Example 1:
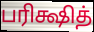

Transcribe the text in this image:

பரிக்ஷித்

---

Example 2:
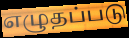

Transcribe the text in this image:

எழுதப்படு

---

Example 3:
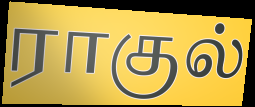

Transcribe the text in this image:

ராகுல்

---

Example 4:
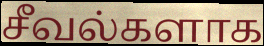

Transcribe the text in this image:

சீவல்களாக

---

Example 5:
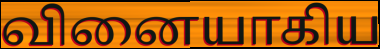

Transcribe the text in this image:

வினையாகிய